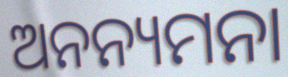
ଅନନ୍ୟମନା